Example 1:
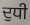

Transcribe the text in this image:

ਦੁਧੀ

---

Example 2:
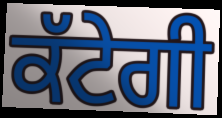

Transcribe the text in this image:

ਕੱਟੇਗੀ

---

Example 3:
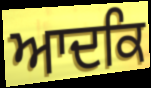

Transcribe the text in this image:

ਆਦਕਿ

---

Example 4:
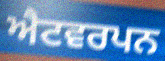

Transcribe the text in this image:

ਐਟਵਰਪਨ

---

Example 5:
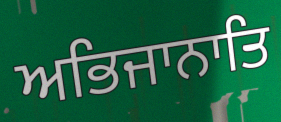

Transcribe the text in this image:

ਅਭਿਜਾਨਾਤਿ